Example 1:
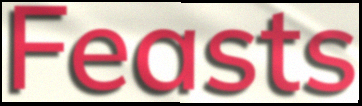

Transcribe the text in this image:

Feasts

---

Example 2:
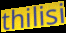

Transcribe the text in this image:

thilisi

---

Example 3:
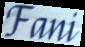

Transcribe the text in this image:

Fani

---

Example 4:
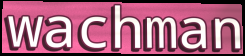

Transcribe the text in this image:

wachman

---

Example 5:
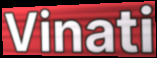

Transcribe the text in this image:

Vinati